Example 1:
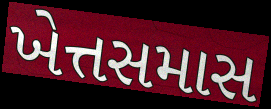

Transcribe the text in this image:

ખેત્તસમાસ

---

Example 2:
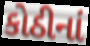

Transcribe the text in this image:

કોઠીનાં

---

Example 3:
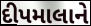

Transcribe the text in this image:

દીપમાલાને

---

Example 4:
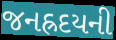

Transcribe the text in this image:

જનહ્રદયની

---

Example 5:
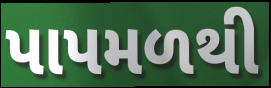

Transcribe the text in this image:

પાપમળથી